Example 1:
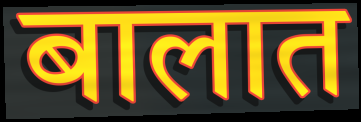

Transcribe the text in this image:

बालात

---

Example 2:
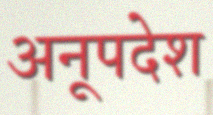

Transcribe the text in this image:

अनूपदेश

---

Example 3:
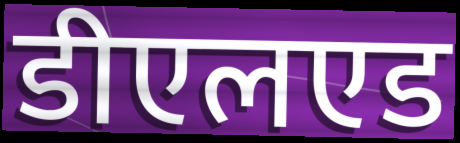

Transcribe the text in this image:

डीएलएड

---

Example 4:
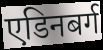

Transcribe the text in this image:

एडिनबर्ग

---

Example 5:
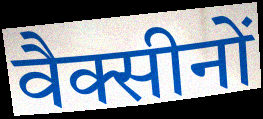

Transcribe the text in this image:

वैक्सीनों